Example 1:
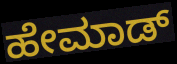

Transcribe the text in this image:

ಹೇಮಾಡ್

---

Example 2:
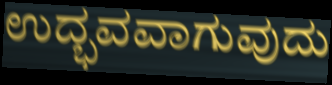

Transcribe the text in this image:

ಉದ್ಭವವಾಗುವುದು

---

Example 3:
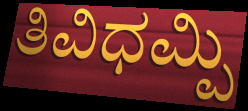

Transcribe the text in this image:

ತಿವಿಧಮ್ಪಿ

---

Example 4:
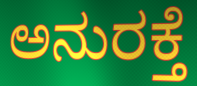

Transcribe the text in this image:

ಅನುರಕ್ತೆ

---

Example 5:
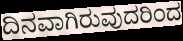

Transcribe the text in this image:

ದಿನವಾಗಿರುವುದರಿಂದ